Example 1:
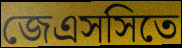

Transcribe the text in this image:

জেএসসিতে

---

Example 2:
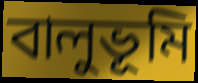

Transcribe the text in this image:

বালুভূমি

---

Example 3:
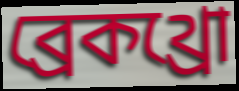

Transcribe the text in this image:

ব্রেকথ্রো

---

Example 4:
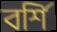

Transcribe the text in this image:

বর্শি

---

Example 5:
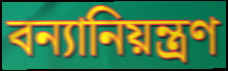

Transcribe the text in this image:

বন্যানিয়ন্ত্রণ